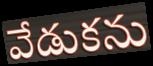
వేడుకను